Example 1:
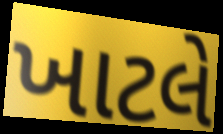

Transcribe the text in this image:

ખાટલે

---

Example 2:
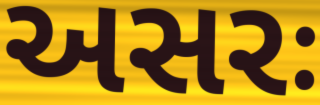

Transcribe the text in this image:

અસરઃ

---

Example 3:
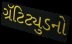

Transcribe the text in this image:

ગ્રૅટિટ્યુડનો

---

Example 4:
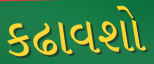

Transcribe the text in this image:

કઢાવશો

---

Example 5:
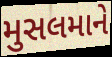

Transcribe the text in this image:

મુસલમાને